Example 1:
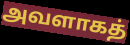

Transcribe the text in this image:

அவளாகத்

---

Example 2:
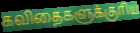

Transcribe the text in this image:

கவிதைகளுக்குரிய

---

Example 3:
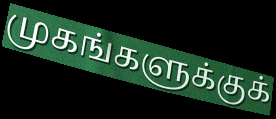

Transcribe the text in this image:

முகங்களுக்குக்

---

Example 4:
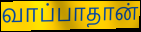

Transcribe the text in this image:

வாப்பாதான்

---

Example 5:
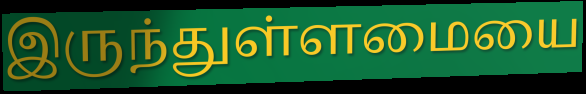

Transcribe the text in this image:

இருந்துள்ளமையை